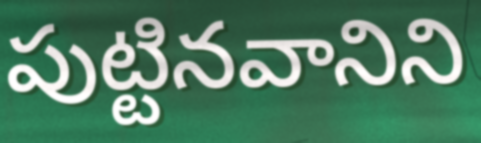
పుట్టినవానిని